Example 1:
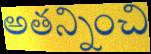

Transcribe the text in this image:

అతన్నించి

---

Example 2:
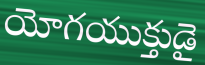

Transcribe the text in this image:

యోగయుక్తుడై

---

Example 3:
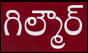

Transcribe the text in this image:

గిల్మౌర్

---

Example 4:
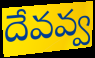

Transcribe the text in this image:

దేవవ్వ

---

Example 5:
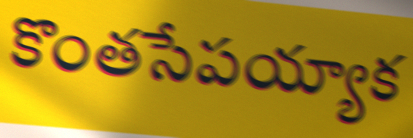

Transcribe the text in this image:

కొంతసేపయ్యాక